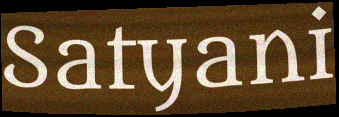
Satyani